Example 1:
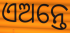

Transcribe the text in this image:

ଏଅନ୍ତେ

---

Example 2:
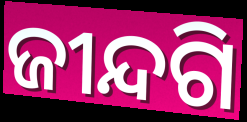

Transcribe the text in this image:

ଜୀନ୍ଦଗି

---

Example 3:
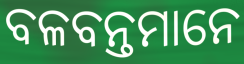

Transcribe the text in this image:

ବଳବନ୍ତମାନେ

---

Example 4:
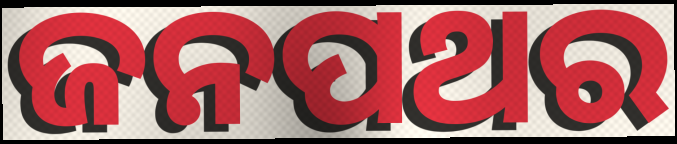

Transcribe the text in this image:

ଜନପଥର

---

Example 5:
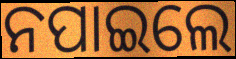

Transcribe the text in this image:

ନପାଇଲେ